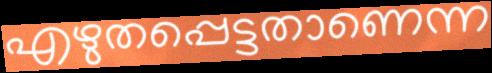
എഴുതപ്പെട്ടതാണെന്ന